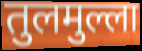
तुलमुल्ला